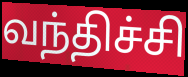
வந்திச்சி